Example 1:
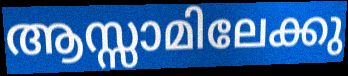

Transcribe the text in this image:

ആസ്സാമിലേക്കു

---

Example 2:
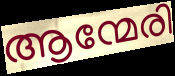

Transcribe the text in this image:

ആന്മേരി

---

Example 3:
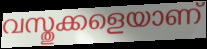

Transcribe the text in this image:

വസ്തുക്കളെയാണ്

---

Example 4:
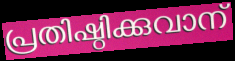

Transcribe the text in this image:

പ്രതിഷ്ഠിക്കുവാന്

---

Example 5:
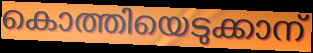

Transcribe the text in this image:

കൊത്തിയെടുക്കാന്